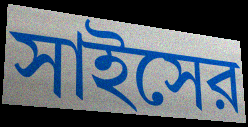
সাইসের